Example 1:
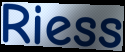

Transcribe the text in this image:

Riess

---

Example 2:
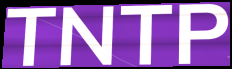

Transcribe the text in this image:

TNTP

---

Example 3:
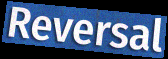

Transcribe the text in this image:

Reversal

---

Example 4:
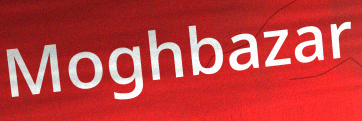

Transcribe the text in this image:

Moghbazar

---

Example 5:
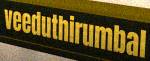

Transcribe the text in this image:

veeduthirumbal